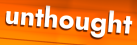
unthought